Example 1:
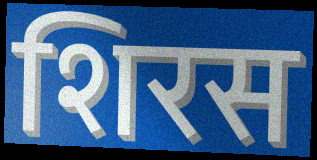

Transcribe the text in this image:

शिरस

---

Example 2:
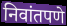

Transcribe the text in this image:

निवांतपणे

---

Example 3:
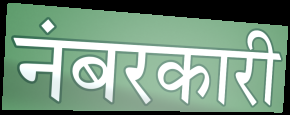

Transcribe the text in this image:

नंबरकारी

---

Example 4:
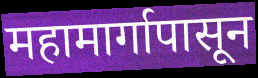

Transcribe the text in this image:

महामार्गापासून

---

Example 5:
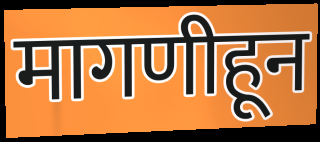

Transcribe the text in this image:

मागणीहून